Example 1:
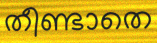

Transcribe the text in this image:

തീണ്ടാതെ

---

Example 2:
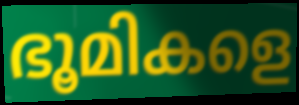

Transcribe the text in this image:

ഭൂമികളെ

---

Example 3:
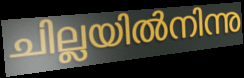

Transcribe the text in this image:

ചില്ലയിൽനിന്നു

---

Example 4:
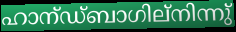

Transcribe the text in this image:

ഹാന്ഡ്ബാഗില്നിന്നു്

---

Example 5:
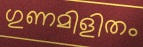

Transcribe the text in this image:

ഗുണമിളിതം